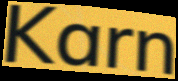
Karn